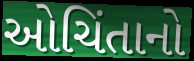
ઓચિંતાનો